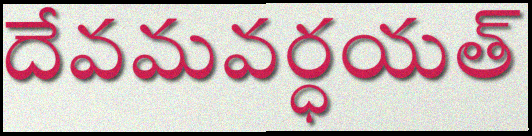
దేవమవర్ధయత్